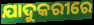
ଯାଦୁକରୀରେ